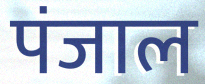
पंजाल